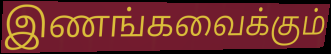
இணங்கவைக்கும்